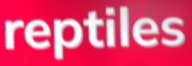
reptiles